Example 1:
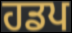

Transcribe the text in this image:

ਹਡਪ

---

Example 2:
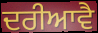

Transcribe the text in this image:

ਦਰੀਆਵੈ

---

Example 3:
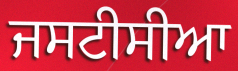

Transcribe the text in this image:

ਜਸਟੀਸੀਆ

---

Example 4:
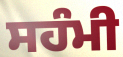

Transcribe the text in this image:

ਸਹੰਮੀ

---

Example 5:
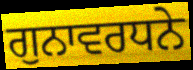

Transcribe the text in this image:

ਗੁਨਾਵਰਧਨੇ